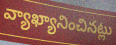
వ్యాఖ్యానించినట్లు